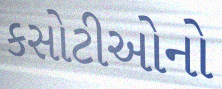
કસોટીઓનો